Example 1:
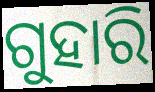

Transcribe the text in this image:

ଗୁହାରି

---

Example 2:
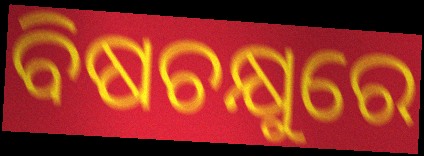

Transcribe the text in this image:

ବିଷଚକ୍ଷୁରେ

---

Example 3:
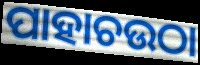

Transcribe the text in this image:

ପାହାଚଉଠା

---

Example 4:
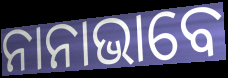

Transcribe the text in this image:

ନାନାଭାବେ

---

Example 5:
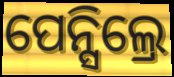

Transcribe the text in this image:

ପେନ୍ସିଲ୍ରେ